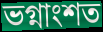
ভগ্নাংশত